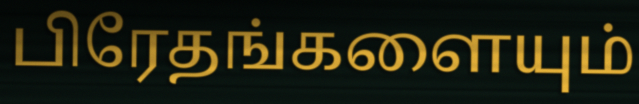
பிரேதங்களையும்